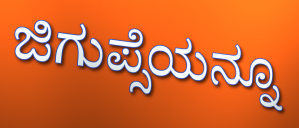
ಜಿಗುಪ್ಸೆಯನ್ನೂ